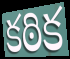
కఠిక